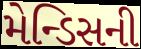
મેન્ડિસની